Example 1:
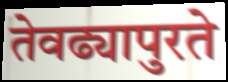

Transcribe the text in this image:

तेवढ्यापुरते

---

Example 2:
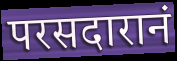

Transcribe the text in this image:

परसदारानं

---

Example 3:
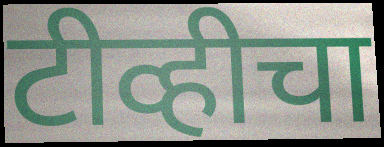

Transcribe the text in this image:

टीव्हीचा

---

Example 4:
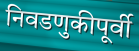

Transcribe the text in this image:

निवडणुकीपूर्वी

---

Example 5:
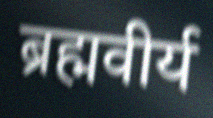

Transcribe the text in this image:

ब्रह्मवीर्य